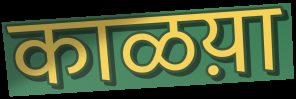
काळय़ा